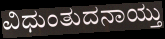
ವಿಧುಂತುದನಾಯ್ತು